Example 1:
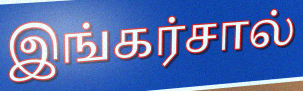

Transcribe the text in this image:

இங்கர்சால்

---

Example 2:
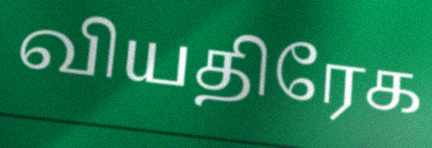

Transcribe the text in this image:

வியதிரேக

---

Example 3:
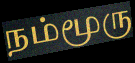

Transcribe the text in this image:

நம்மூரு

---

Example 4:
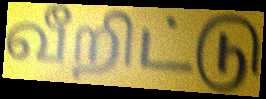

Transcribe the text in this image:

வீறிட்டு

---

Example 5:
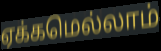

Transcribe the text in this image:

ஏக்கமெல்லாம்